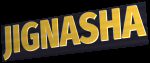
JIGNASHA